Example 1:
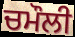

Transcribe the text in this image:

ਚਮੌਲੀ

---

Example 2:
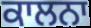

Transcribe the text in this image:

ਕਾਲਨਾ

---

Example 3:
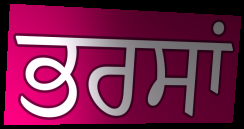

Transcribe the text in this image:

ਭਰਸਾਂ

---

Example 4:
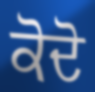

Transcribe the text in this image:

ਕੋਦੋ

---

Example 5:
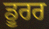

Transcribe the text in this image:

ਡੂਰਰ